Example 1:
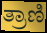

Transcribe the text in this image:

ತ್ರಾಣಿ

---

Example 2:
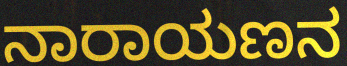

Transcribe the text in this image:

ನಾರಾಯಣನ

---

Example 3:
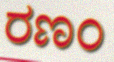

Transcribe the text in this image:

ರಣಂ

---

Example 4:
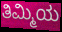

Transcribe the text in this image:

ತಿಮ್ಮಿಯ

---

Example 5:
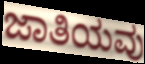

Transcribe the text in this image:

ಜಾತಿಯವು